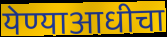
येण्याआधीचा